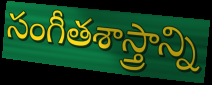
సంగీతశాస్త్రాన్ని